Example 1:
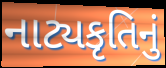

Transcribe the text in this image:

નાટ્યકૃતિનું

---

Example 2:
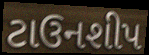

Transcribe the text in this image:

ટાઉનશીપ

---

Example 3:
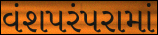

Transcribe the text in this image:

વંશપરંપરામાં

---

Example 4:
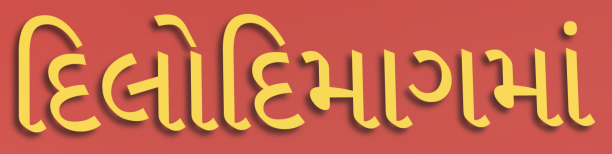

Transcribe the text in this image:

દિલોદિમાગમાં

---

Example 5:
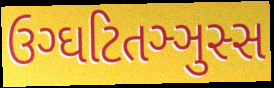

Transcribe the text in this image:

ઉગ્ઘટિતઞ્ઞુસ્સ